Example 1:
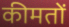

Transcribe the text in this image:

कीमतों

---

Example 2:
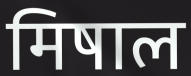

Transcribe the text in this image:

मिषाल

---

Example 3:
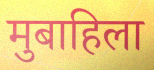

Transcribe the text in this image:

मुबाहिला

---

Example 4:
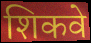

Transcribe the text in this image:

शिकवे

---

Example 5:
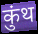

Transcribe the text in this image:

कुंथ